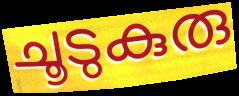
ചൂടുകുരു